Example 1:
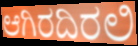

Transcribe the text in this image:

ಆಗಿರದಿರಲಿ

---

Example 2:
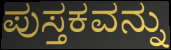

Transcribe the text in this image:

ಪುಸ್ತಕವನ್ನು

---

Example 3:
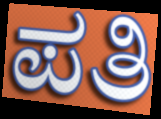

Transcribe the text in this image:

ಪತಿ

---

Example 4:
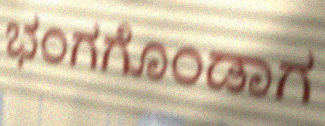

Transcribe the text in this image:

ಭಂಗಗೊಂಡಾಗ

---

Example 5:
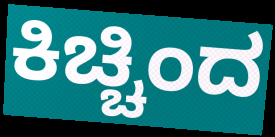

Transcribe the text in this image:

ಕಿಚ್ಚಿಂದ